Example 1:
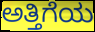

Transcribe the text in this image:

ಅತ್ತಿಗೆಯ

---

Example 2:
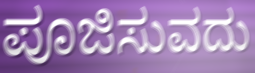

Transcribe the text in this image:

ಪೂಜಿಸುವದು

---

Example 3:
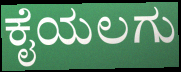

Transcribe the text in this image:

ಕೈಯಲಗು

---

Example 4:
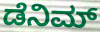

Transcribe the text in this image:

ಡೆನಿಮ್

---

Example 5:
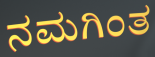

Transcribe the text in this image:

ನಮಗಿಂತ